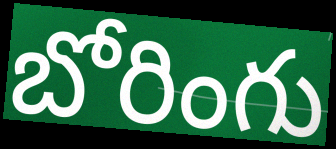
బోరింగు